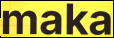
maka